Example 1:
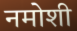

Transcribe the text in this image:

नमोशी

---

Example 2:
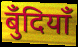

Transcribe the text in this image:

बुँदियाँ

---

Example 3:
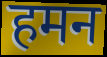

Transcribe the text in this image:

हमन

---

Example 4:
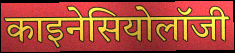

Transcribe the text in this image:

काइनेसियोलॉजी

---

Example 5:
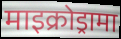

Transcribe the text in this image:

माइक्रोड्रामा